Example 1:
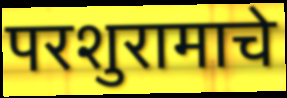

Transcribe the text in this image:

परशुरामाचे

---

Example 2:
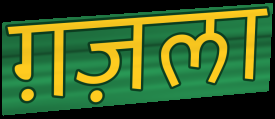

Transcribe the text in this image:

ग़ज़ला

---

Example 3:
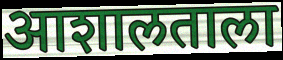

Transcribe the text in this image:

आशालताला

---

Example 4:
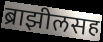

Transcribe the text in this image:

ब्राझीलसह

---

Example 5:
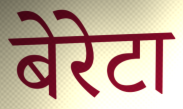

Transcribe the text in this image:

बेरेटा